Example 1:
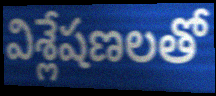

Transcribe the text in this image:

విశ్లేషణలతో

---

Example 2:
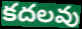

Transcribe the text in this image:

కదలవు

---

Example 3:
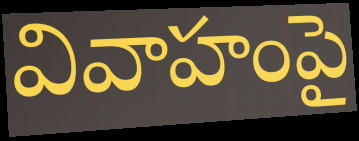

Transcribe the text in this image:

వివాహంపై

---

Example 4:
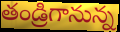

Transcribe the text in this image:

తండ్రిగానున్న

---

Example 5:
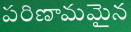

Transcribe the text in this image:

పరిణామమైన